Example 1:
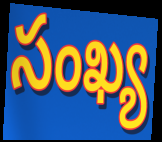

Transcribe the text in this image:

సంఖ్య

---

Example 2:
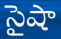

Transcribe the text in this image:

సైషా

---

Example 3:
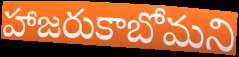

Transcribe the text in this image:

హాజరుకాబోమని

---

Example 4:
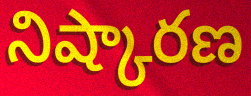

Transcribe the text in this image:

నిష్కారణ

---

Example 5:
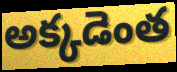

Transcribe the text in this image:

అక్కడెంత